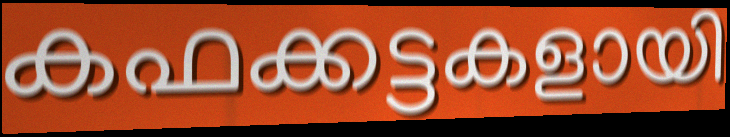
കഫക്കട്ടകളായി